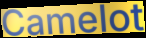
Camelot